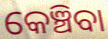
କେଞ୍ଚିବା